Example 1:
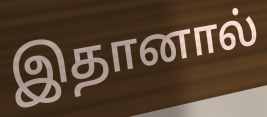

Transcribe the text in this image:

இதானால்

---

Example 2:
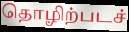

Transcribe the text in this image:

தொழிற்படச்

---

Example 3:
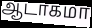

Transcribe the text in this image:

ஆடாகமா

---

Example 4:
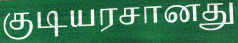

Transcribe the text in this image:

குடியரசானது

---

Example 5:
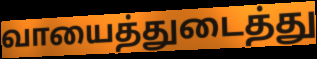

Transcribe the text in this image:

வாயைத்துடைத்து